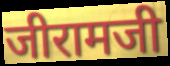
जीरामजी